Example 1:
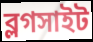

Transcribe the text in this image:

ব্লগসাইট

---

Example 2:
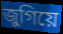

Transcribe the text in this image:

জুগিয়ে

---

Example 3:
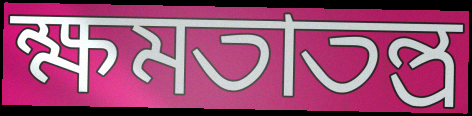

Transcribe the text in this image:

ক্ষমতাতন্ত্র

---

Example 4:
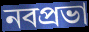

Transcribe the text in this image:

নবপ্রভা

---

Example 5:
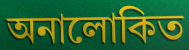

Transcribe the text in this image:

অনালোকিত